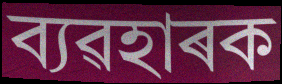
ব্যৱহাৰক